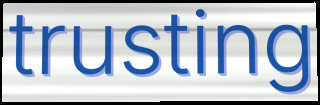
trusting